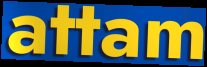
attam